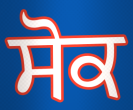
ਸੋਕ